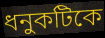
ধনুকটিকে